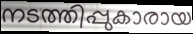
നടത്തിപ്പുകാരായ